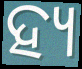
ହ୍ୟ